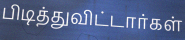
பிடித்துவிட்டார்கள்